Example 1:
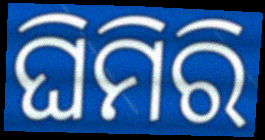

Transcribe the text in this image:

ଘିମିରି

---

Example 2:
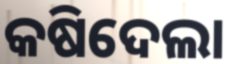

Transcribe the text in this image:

କଷିଦେଲା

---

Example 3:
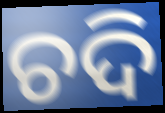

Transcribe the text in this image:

ଚଦି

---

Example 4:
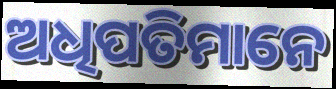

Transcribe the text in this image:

ଅଧିପତିମାନେ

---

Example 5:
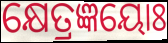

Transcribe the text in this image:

କ୍ଷେତ୍ରଜ୍ଞୟୋଃ